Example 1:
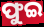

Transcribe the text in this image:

ଫୁଇ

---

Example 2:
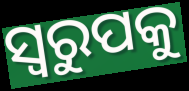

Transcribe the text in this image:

ସ୍ଵରୁପକୁ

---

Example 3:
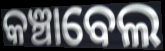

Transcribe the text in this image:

କଞ୍ଚାବେଲ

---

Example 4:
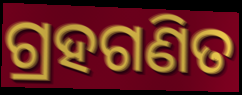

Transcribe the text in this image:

ଗ୍ରହଗଣିତ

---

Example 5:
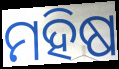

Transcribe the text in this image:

ମହିଷ